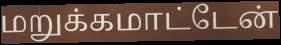
மறுக்கமாட்டேன்